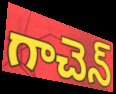
గాచెన్